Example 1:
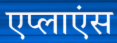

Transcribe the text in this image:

एप्लाएंस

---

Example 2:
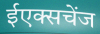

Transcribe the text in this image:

ईएक्सचेंज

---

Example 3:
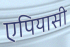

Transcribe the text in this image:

एपियासी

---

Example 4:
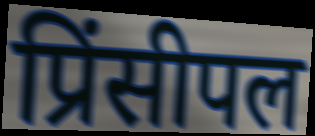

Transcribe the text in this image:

प्रिंसीपल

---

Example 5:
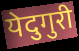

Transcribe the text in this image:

येदुगुरी